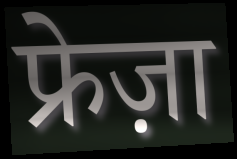
फ्रेज़ा